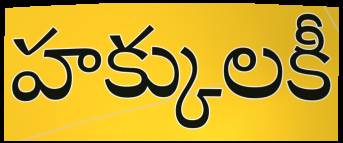
హక్కులకీ